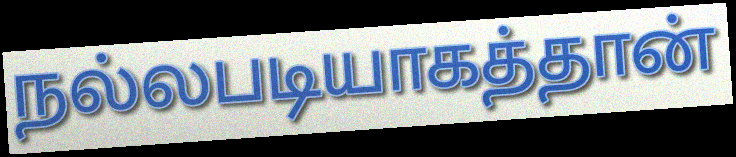
நல்லபடியாகத்தான்